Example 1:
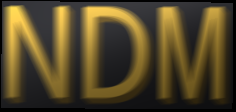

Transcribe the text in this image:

NDM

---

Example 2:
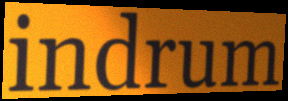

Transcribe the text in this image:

indrum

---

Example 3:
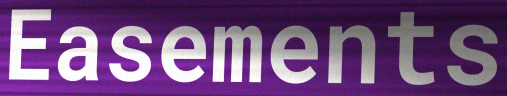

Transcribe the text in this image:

Easements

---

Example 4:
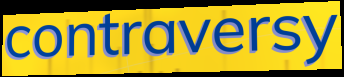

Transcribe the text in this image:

contraversy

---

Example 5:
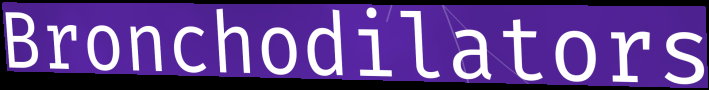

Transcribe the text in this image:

Bronchodilators